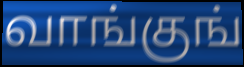
வாங்குங்